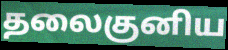
தலைகுனிய